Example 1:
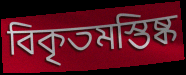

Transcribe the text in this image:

বিকৃতমস্তিষ্ক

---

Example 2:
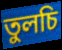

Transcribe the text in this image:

তুলচি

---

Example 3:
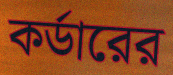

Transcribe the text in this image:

কর্ডারের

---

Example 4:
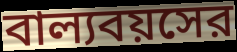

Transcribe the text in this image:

বাল্যবয়সের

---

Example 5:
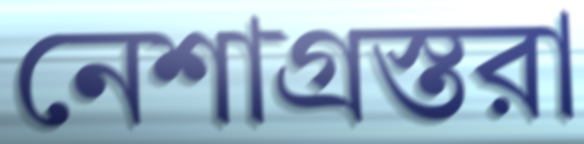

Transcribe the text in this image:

নেশাগ্রস্তরা